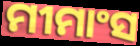
ମୀମାଂସ